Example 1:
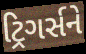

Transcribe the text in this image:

ટ્રિગર્સને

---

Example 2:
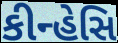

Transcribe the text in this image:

કીન્હેસિ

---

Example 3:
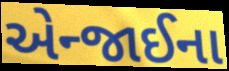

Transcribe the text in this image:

એન્જાઈના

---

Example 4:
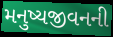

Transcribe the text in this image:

મનુષ્યજીવનની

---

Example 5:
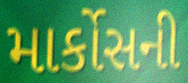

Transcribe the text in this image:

માર્કોસની